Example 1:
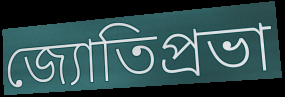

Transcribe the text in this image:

জ্যোতিপ্রভা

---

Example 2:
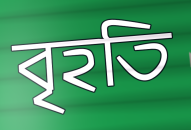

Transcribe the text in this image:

বৃহতি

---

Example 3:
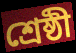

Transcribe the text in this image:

শ্রেষ্ঠী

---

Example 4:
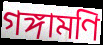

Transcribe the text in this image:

গঙ্গামণি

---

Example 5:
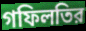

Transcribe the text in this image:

গফিলতির